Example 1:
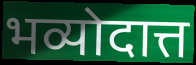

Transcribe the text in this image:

भव्योदात्त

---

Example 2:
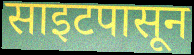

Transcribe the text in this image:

साइटपासून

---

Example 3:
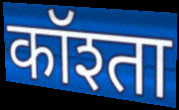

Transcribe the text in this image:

कॉश्ता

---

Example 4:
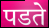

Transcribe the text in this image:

पडते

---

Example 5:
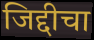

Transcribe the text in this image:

जिद्दीचा